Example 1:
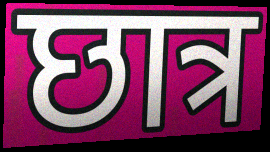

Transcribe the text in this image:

छात्र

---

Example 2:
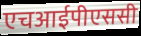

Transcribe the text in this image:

एचआईपीएससी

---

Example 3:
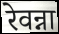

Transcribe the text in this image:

रेवन्ना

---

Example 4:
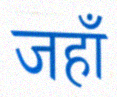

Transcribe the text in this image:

जहाँ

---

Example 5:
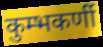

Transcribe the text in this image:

कुम्भकर्णी